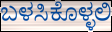
ಬಳಸಿಕೊಳ್ಳಲಿ